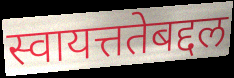
स्वायत्ततेबद्दल